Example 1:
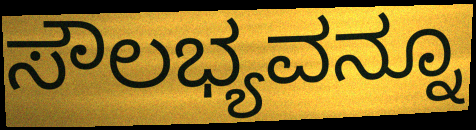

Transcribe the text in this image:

ಸೌಲಭ್ಯವನ್ನೂ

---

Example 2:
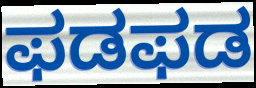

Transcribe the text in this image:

ಫಡಫಡ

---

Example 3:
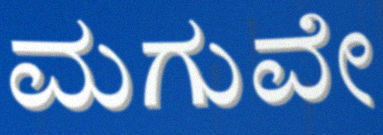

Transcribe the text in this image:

ಮಗುವೇ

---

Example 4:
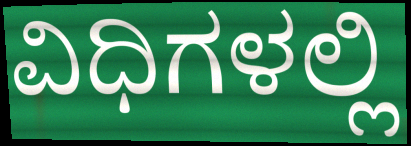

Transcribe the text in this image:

ವಿಧಿಗಳಲ್ಲಿ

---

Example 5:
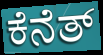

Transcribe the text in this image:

ಕೆನೆತ್